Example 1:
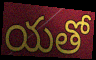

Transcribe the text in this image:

యతో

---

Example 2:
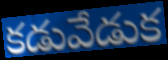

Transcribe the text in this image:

కడువేడుక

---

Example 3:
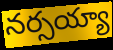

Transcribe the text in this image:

నర్సయ్యా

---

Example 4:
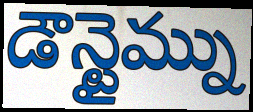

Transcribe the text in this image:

డౌన్టైమ్ను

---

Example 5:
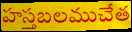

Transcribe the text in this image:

హస్తబలముచేత